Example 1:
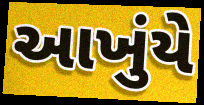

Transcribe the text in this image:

આખુંયે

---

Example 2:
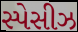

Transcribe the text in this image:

સ્પેસીઝ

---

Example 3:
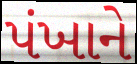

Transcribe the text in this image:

પંખાને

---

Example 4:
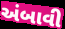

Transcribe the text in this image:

અંબાવી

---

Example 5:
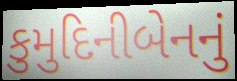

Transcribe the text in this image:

કુમુદિનીબેનનું